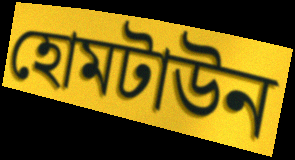
হোমটাউন